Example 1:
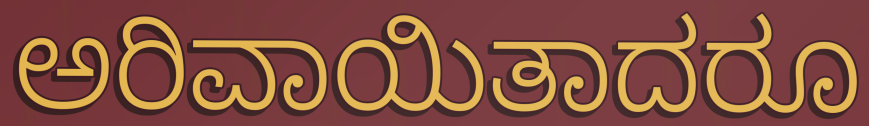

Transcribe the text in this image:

ಅರಿವಾಯಿತಾದರೂ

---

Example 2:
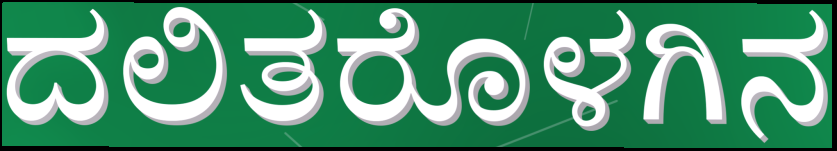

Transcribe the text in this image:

ದಲಿತರೊಳಗಿನ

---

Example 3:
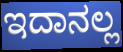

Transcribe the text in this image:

ಇದಾನಲ್ಲ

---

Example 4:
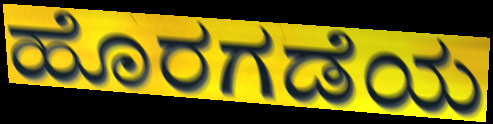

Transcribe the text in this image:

ಹೊರಗಡೆಯ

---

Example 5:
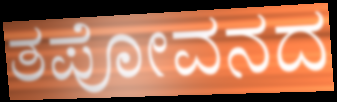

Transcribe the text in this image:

ತಪೋವನದ